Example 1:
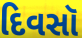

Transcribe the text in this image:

દિવસૉ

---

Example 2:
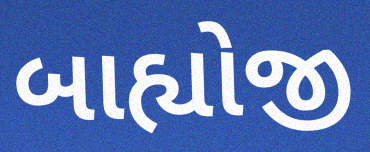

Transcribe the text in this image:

બાહ્યોજી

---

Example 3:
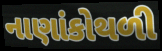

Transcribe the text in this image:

નાણાંકોથળી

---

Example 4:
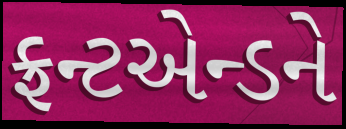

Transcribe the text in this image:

ફ્રન્ટએન્ડને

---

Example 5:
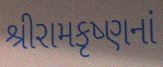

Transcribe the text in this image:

શ્રીરામકૃષ્ણનાં